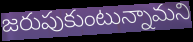
జరుపుకుంటున్నామని